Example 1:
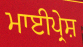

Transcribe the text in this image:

ਮਾਈਪ੍ਰੇਸ਼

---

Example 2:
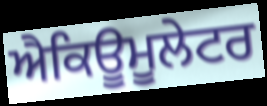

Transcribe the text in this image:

ਐਕਿਊਮੂਲੇਟਰ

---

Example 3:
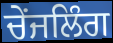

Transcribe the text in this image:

ਚੇਂਜਲਿੰਗ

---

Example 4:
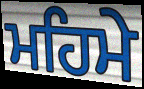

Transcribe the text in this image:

ਮਹਿਮੇ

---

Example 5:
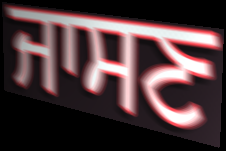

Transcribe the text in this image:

ਜਾਸਣ